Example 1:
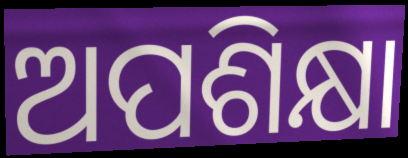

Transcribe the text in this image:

ଅପଶିକ୍ଷା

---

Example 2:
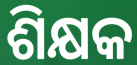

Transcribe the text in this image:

ଶିକ୍ଷକ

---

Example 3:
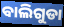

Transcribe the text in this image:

ବାଲିଗୁଡା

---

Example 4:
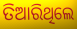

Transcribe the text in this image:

ତିଆରିଥିଲେ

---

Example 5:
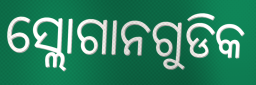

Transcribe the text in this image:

ସ୍ଲୋଗାନଗୁଡିକ